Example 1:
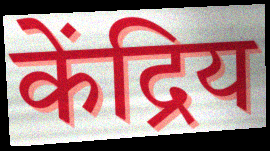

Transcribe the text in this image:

केंद्रिय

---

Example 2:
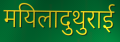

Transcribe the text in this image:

मयिलादुथुराई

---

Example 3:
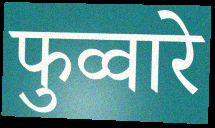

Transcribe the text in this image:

फुव्वारे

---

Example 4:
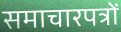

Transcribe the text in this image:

समाचारपत्रों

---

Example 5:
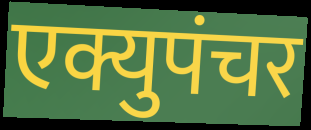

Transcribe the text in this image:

एक्युपंचर